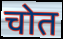
चोत